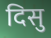
दिसु